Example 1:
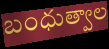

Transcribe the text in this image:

బంధుత్వాల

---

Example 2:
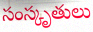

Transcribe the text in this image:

సంస్కృతులు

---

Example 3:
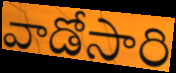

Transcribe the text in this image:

వాడోసారి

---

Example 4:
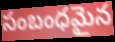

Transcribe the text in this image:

సంబంధమైన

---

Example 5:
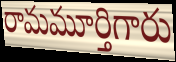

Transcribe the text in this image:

రామమూర్తిగారు